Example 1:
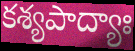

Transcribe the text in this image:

కశ్యపాద్యాః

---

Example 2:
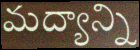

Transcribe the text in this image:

మద్యాన్ని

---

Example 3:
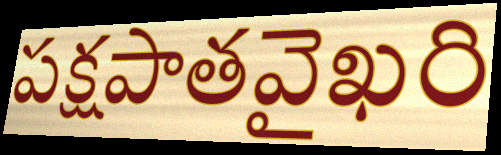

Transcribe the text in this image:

పక్షపాతవైఖరి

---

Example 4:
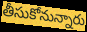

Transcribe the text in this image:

తీసుకోనున్నారు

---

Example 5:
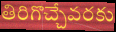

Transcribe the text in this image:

తిరిగొచ్చేవరకు